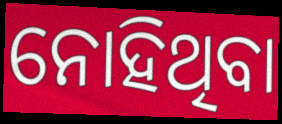
ନୋହିଥିବା